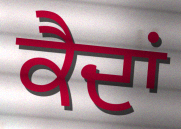
ਕੈਦਾਂ